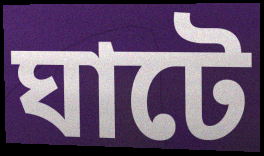
ঘাটে